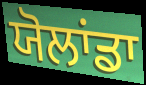
ਯੋਲਾਂਡਾ